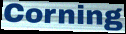
Corning